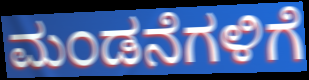
ಮಂಡನೆಗಳಿಗೆ